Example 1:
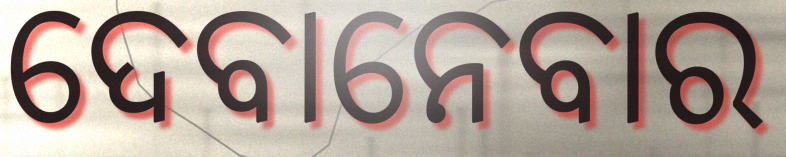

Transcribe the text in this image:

ଦେବାନେବାର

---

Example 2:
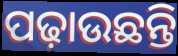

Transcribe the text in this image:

ପଢ଼ାଉଛନ୍ତି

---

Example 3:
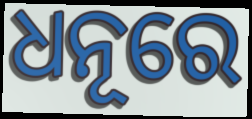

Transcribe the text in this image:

ଧନୂରେ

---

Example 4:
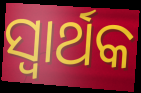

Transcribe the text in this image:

ସ୍ବାର୍ଥକ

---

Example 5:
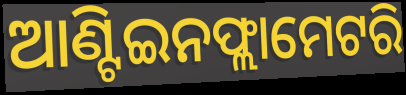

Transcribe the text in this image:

ଆଣ୍ଟିଇନଫ୍ଲାମେଟରି